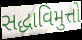
સદ્ધાવિમુત્તો